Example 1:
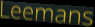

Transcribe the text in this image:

Leemans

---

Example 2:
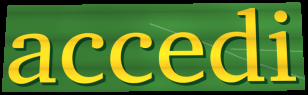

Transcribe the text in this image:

accedi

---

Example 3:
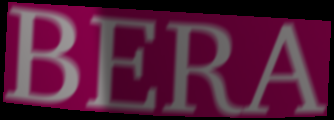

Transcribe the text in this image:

BERA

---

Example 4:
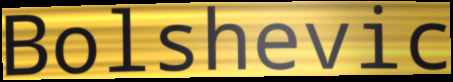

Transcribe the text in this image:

Bolshevic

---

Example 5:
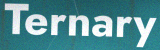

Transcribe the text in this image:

Ternary